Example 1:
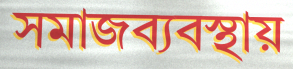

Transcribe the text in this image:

সমাজব্যবস্থায়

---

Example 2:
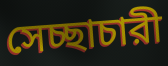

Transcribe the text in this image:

সেচ্ছাচারী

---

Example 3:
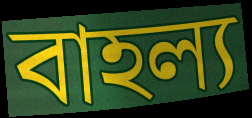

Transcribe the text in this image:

বাহল্য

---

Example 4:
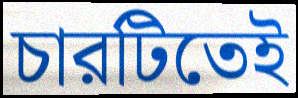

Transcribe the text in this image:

চারটিতেই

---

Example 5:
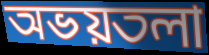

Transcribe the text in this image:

অভয়তলা